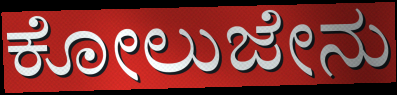
ಕೋಲುಜೇನು